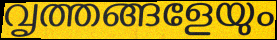
വൃത്തങ്ങളേയും